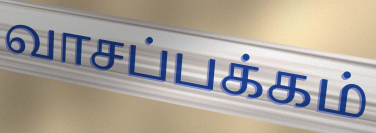
வாசப்பக்கம்